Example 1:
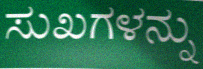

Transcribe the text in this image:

ಸುಖಗಳನ್ನು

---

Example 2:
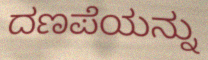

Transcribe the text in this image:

ದಣಪೆಯನ್ನು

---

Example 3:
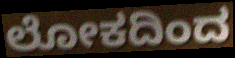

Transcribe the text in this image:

ಲೋಕದಿಂದ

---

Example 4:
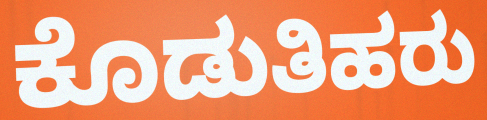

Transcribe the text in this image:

ಕೊಡುತಿಹರು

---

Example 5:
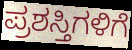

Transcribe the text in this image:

ಪ್ರಶಸ್ತಿಗಳಿಗೆ